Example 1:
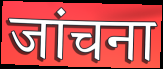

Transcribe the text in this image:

जांचना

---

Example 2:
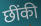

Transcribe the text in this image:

छींकी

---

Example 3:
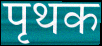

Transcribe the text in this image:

पृथक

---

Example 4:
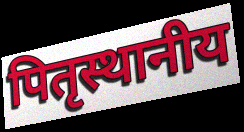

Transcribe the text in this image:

पितृस्थानीय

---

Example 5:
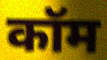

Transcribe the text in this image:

कॉम